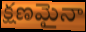
క్షణమైనా